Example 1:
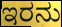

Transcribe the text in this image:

ಇರನು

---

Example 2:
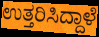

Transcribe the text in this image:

ಉತ್ತರಿಸಿದ್ದಾಳೆ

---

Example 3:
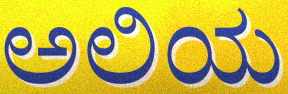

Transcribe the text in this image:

ಅಲಿಯ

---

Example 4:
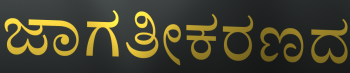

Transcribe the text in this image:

ಜಾಗತೀಕರಣದ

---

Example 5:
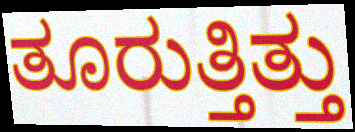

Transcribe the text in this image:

ತೂರುತ್ತಿತ್ತು